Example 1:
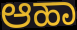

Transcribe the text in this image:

ಆಹಾ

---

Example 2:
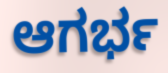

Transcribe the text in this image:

ಆಗರ್ಭ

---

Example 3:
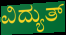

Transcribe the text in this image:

ವಿದ್ಯುತ್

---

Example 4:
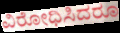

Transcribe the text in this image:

ವಿರೋಧಿಸಿದರೂ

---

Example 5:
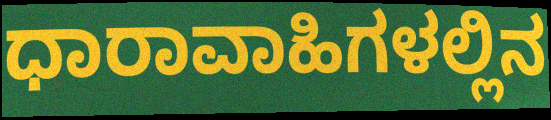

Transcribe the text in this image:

ಧಾರಾವಾಹಿಗಳಲ್ಲಿನ